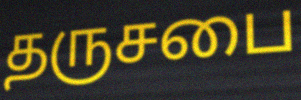
தருசபை